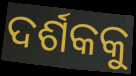
ଦର୍ଶକକୁ